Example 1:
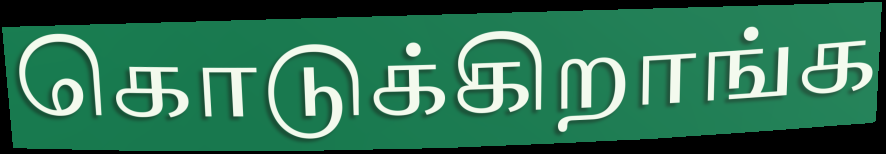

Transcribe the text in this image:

கொடுக்கிறாங்க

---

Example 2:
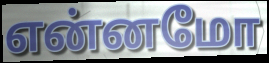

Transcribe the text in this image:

என்னமோ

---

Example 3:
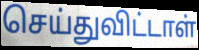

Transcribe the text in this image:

செய்துவிட்டாள்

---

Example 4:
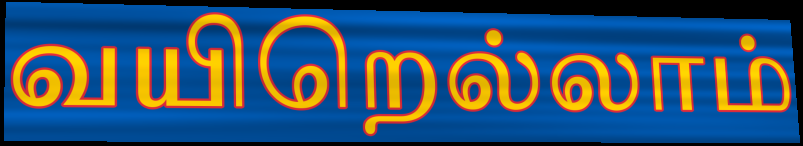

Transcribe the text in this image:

வயிறெல்லாம்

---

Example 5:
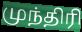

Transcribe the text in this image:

முந்திரி